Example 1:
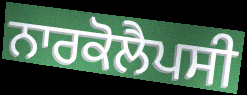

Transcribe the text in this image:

ਨਾਰਕੋਲੈਪਸੀ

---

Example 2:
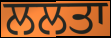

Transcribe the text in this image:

ਲਲਤਾ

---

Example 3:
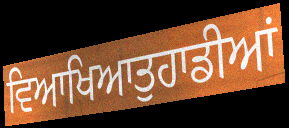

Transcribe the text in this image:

ਵਿਆਖਿਆਤੁਹਾਡੀਆਂ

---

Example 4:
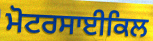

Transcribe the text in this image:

ਮੋਟਰਸਾਈਕਿਲ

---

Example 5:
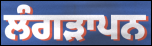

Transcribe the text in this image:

ਲੰਗੜਾਪਨ